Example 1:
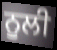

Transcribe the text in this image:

ਨੂਲੀ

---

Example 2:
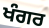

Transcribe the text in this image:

ਖੰਗਰ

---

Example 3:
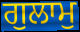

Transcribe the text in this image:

ਗੁਲਾਮੁ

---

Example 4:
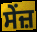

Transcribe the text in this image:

ਸੇਂਜ਼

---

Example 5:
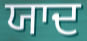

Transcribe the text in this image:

ਯਾਦ